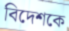
বিদেশকে